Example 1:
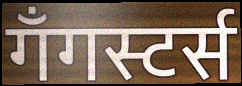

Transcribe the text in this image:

गँगस्टर्स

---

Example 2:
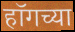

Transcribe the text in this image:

हॉगच्या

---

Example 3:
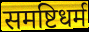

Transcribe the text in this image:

समष्टिधर्म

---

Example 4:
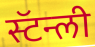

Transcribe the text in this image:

स्टॅन्ली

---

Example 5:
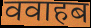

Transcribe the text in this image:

ववाहब